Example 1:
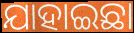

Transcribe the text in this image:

ଯାହାଇଛା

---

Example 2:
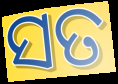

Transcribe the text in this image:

ସତ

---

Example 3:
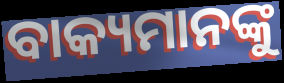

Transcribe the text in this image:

ବାକ୍ୟମାନଙ୍କୁ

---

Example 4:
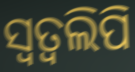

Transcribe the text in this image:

ସ୍ୱତ୍ୱଲିପି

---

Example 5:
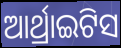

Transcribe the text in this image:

ଆର୍ଥ୍ରାଇଟିସ